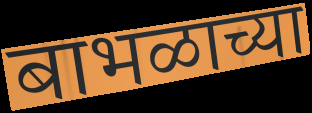
बाभळाच्या